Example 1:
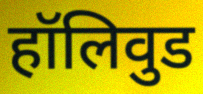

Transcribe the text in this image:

हॉलिवुड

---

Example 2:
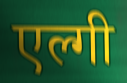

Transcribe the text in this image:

एल्गी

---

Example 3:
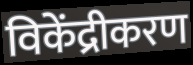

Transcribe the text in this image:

विकेंद्रीकरण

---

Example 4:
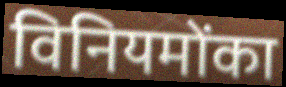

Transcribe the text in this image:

विनियमोंका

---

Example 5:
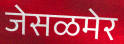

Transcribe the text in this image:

जेसळमेर